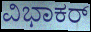
ವಿಭಾಕರ್